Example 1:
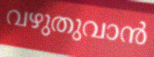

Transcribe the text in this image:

വഴുതുവാൻ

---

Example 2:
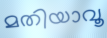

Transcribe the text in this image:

മതിയാവൂ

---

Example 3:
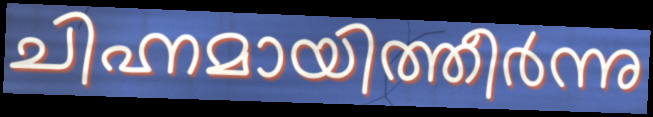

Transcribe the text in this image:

ചിഹ്നമായിത്തീർന്നു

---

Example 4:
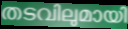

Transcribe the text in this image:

തടവിലുമായി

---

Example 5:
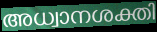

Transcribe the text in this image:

അധ്വാനശക്തി